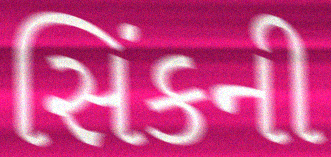
સિંકની